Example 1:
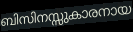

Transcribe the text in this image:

ബിസിനസ്സുകാരനായ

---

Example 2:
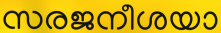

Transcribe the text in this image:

സരജനീശയാ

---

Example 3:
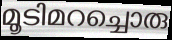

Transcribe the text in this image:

മൂടിമറച്ചൊരു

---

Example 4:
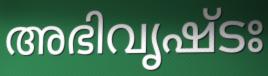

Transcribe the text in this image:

അഭിവൃഷ്ടഃ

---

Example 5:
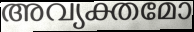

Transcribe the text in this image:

അവ്യക്തമോ